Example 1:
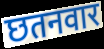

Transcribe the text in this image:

छतनवार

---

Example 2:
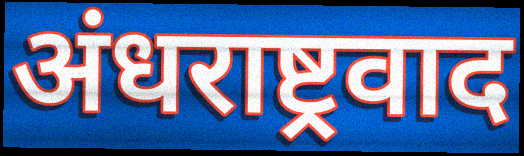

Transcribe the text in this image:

अंधराष्ट्रवाद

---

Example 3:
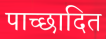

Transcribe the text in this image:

पाच्छादित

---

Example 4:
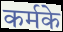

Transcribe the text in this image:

कर्मके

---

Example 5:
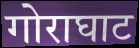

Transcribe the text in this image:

गोराघाट